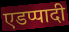
एडप्पादी